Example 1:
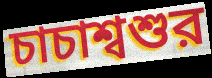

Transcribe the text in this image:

চাচাশ্বশুর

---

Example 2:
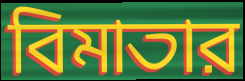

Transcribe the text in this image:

বিমাতার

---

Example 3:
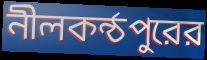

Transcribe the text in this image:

নীলকন্ঠপুরের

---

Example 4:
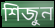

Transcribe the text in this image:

শিজুন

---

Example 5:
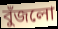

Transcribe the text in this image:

বুঁজলো